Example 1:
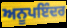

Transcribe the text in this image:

ਅਨੂਪਇੰਦਰ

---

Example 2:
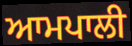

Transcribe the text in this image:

ਆਮਪਾਲੀ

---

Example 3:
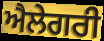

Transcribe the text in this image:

ਐਲੇਗਰੀ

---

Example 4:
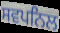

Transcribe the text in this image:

ਸਵਪਨਿਲ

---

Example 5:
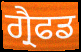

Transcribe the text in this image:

ਗ੍ਰੈਫਡ